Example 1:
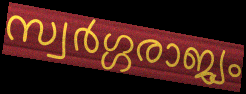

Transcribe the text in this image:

സ്വർഗ്ഗരാജ്യം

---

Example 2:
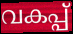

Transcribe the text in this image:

വകപ്പ്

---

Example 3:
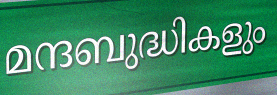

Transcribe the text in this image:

മന്ദബുദ്ധികളും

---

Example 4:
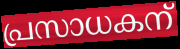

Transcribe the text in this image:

പ്രസാധകന്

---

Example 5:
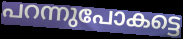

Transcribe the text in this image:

പറന്നുപോകട്ടെ